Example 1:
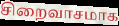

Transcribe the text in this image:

சிறைவாசமாக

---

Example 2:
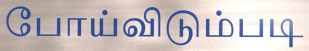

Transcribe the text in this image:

போய்விடும்படி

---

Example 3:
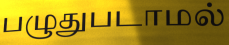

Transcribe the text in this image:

பழுதுபடாமல்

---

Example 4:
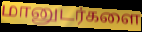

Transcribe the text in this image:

மானுடர்களை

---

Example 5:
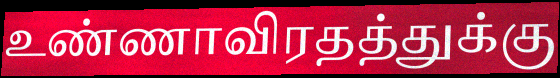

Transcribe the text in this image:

உண்ணாவிரதத்துக்கு